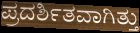
ಪ್ರದರ್ಶಿತವಾಗಿತ್ತು